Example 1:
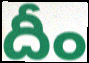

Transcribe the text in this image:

దీం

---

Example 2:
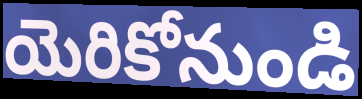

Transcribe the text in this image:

యెరికోనుండి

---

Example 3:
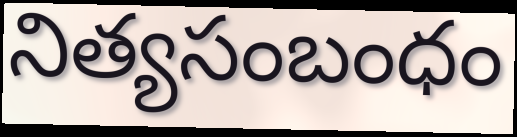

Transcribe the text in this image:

నిత్యసంబంధం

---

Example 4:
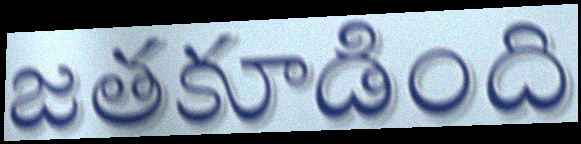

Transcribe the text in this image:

జతకూడింది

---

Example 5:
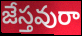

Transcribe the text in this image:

జేస్తవురా